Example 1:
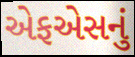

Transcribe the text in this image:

એફએસનું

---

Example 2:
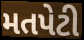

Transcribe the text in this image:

મતપેટી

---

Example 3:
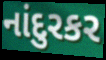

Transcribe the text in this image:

નાંદુરકર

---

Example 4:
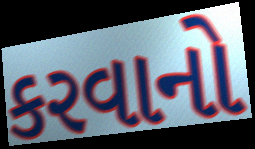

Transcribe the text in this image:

કરવાનો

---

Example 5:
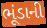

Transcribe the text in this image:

ભૂંડાની